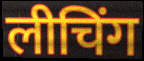
लीचिंग